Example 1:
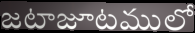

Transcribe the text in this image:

జటాజూటములో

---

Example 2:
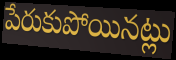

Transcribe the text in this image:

పేరుకుపోయినట్లు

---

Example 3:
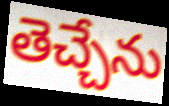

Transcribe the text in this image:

తెచ్చేను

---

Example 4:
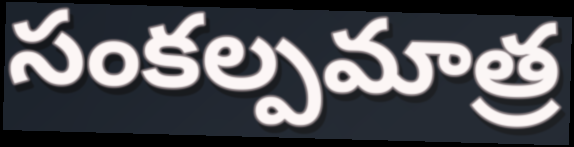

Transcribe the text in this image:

సంకల్పమాత్ర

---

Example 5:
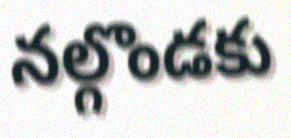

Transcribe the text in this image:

నల్గొండకు